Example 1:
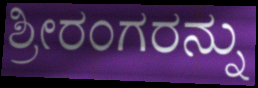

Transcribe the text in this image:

ಶ್ರೀರಂಗರನ್ನು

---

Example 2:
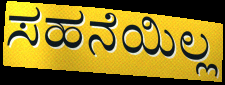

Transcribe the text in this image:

ಸಹನೆಯಿಲ್ಲ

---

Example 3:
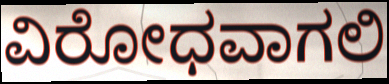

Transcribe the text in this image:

ವಿರೋಧವಾಗಲಿ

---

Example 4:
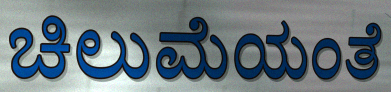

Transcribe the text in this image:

ಚಿಲುಮೆಯಂತೆ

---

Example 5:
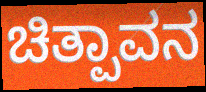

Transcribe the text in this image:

ಚಿತ್ಪಾವನ